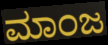
ಮಾಂಜ